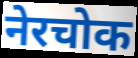
नेरचोक